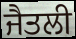
ਜੈਤਲੀ